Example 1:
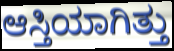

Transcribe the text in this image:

ಆಸ್ತಿಯಾಗಿತ್ತು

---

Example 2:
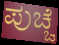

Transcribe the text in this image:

ಪುಚ್ಚೆ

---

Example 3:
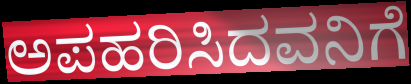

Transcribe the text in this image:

ಅಪಹರಿಸಿದವನಿಗೆ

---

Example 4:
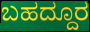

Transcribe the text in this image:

ಬಹದ್ದೂರ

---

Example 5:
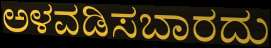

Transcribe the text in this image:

ಅಳವಡಿಸಬಾರದು